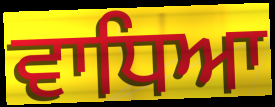
ਵਾਧਿਆ